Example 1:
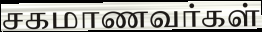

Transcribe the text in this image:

சகமாணவர்கள்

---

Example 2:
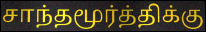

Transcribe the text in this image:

சாந்தமூர்த்திக்கு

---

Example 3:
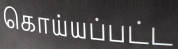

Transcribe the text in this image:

கொய்யப்பட்ட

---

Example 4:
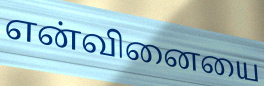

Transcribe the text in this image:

என்வினையை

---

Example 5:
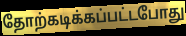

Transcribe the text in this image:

தோற்கடிக்கப்பட்டபோது